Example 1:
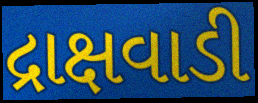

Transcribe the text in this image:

દ્રાક્ષવાડી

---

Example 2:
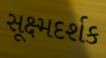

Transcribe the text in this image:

સૂક્ષ્મદર્શક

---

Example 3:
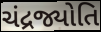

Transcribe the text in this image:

ચંદ્રજ્યોતિ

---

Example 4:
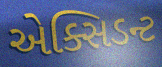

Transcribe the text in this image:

એક્સિડન્ટ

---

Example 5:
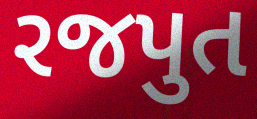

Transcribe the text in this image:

રજપુત